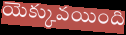
యెక్కువయింది